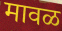
मावळ